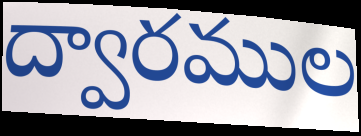
ద్వారముల